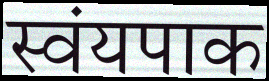
स्वंयपाक